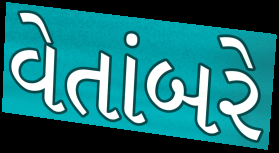
વેતાંબરે